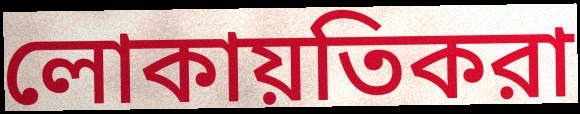
লোকায়তিকরা